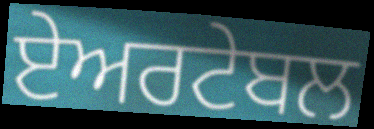
ਏਅਰਟੇਬਲ